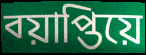
ব্য়াপ্তিয়ে